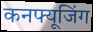
कनफ्यूजिंग